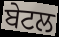
ਬੇਟਲ